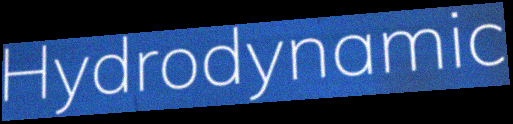
Hydrodynamic